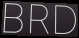
BRD